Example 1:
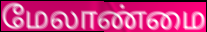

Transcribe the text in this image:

மேலாண்மை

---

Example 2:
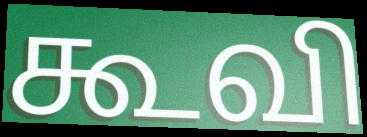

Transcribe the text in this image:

கூவி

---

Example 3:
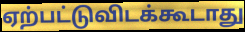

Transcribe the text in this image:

ஏற்பட்டுவிடக்கூடாது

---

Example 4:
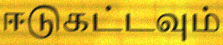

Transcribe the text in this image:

ஈடுகட்டவும்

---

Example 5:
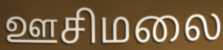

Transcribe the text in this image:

ஊசிமலை